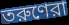
তরুণেরা